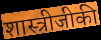
शास्त्रीजीकी